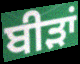
ਬੀੜਾਂ